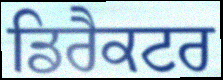
ਡਿਰੈਕਟਰ